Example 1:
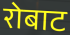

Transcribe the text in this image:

रोबाट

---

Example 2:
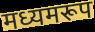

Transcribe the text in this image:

मध्यमरूप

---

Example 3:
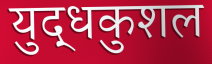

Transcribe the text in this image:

युद्धकुशल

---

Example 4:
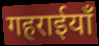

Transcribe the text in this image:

गहराईयाँ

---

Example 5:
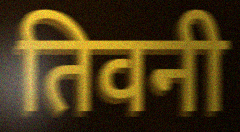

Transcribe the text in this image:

तिवनी